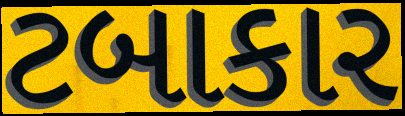
ટબાકાર